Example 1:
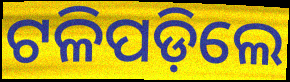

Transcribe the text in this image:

ଟଳିପଡ଼ିଲେ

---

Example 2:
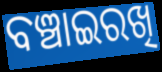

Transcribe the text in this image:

ବଞ୍ଚାଇରଖି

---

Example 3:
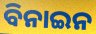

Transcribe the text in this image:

ବିନାଇନ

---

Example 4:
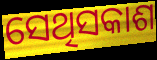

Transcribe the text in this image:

ସେଥିସକାଶ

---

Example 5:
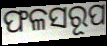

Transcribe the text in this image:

ଫଳସରୂପ